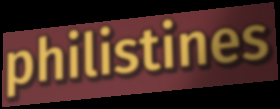
philistines